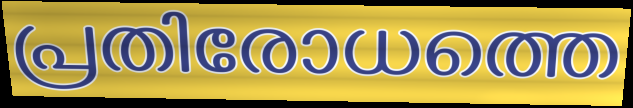
പ്രതിരോധത്തെ